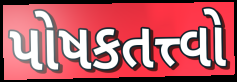
પોષકતત્ત્વો